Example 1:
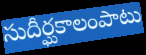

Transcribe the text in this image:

సుదీర్ఘకాలంపాటు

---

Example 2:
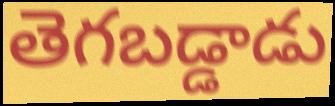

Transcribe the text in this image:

తెగబడ్డాడు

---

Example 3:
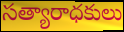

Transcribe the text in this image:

సత్యారాధకులు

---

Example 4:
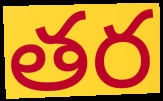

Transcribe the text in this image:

తర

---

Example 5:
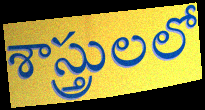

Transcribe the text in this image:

శాస్త్రులలో